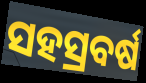
ସହସ୍ରବର୍ଷ